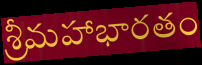
శ్రీమహాభారతం